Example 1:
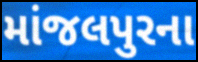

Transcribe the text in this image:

માંજલપુરના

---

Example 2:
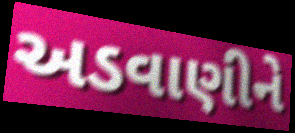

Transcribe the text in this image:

અડવાણીને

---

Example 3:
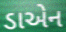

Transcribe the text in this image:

ડાએન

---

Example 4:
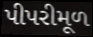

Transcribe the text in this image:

પીપરીમૂળ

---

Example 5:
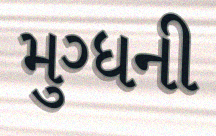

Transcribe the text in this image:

મુગ્ધની